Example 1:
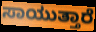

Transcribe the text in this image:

ಸಾಯುತ್ತಾರೆ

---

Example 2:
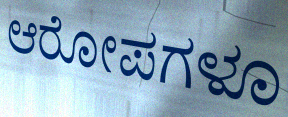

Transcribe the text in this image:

ಆರೋಪಗಳೂ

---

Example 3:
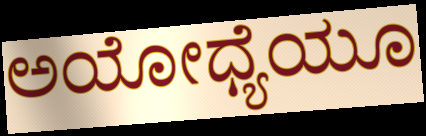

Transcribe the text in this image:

ಅಯೋಧ್ಯೆಯೂ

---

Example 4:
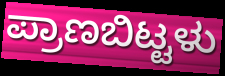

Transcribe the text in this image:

ಪ್ರಾಣಬಿಟ್ಟಳು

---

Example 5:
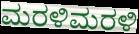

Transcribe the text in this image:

ಮರಳಿಮರಳಿ